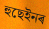
হুছেইনৰ